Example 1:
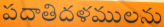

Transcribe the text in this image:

పదాతిదళములను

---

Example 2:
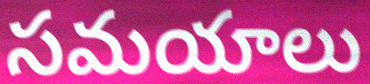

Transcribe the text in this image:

సమయాలు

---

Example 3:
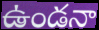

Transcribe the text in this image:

ఉండనా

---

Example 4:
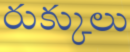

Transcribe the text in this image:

రుక్కులు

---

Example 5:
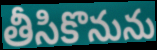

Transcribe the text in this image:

తీసికొనును